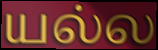
யல்ல